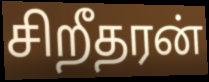
சிறீதரன்